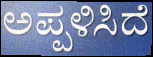
ಅಪ್ಪಳಿಸಿದೆ